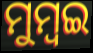
ମୁମ୍ୱଇ